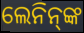
ଲେନିନ୍‌ଙ୍କ